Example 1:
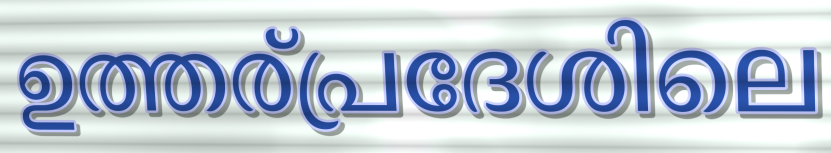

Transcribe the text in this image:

ഉത്തര്പ്രദേശിലെ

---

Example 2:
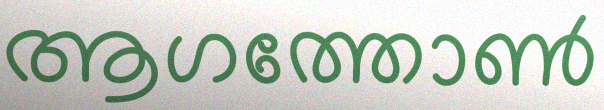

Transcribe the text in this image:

ആഗത്തോൺ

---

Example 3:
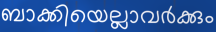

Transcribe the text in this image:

ബാക്കിയെല്ലാവർക്കും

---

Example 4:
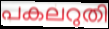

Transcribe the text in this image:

പകലറുതി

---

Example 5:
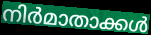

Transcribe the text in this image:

നിർമാതാക്കൾ